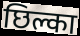
छिल्का